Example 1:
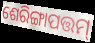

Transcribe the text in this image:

ଶେରିଙ୍ଗାପତ୍ତମ୍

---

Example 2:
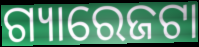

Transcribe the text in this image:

ଗ୍ୟାରେଜଟା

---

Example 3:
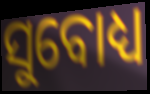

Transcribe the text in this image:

ସୁବୋଧ୍ୟ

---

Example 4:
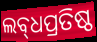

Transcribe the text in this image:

ଲବ୍‌ଧପ୍ରତିଷ୍ଠ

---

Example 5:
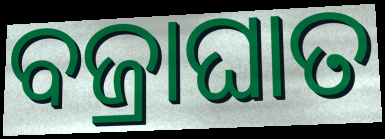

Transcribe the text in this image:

ବଜ୍ରାଘାତ